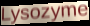
Lysozyme